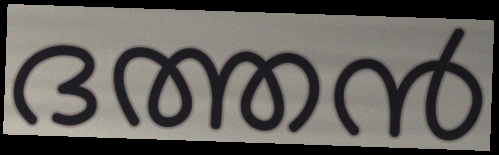
ദത്തൻ